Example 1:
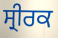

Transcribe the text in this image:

ਸ੍ਰੀਰਕ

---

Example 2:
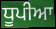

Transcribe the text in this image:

ਧੂਪੀਆ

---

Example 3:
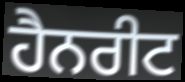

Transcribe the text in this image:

ਹੈਨਰੀਟ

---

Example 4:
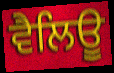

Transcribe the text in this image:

ਵੈਲਿਊ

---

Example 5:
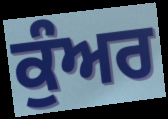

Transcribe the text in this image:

ਕੁੰਅਰ